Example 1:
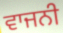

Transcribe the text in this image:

ਵਾਜਨੀ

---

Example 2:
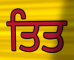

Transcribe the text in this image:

ਤਿਤ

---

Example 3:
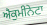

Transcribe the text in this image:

ਐਕੁਮੀਨੇਟਾ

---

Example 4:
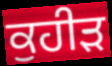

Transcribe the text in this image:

ਕੁਹੀੜ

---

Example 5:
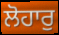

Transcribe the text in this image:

ਲੋਹਾਰੁ